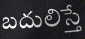
బదులిస్తే